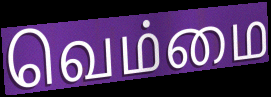
வெம்மை